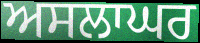
ਅਸਲਾਘਰ